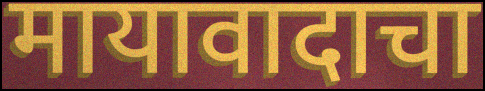
मायावादाचा